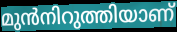
മുൻനിറുത്തിയാണ്